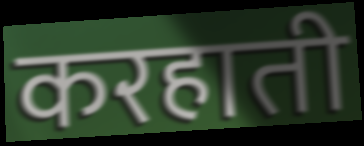
करहाती